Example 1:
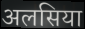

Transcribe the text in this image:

अलसिया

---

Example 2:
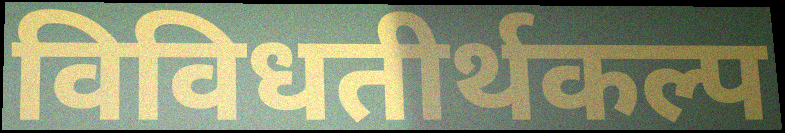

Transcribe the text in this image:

विविधतीर्थकल्प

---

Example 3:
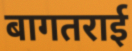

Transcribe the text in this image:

बागतराई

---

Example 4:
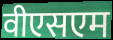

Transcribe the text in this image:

वीएसएम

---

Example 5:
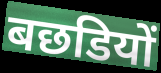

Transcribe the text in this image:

बछडियों